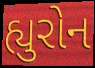
હ્યુરોન